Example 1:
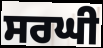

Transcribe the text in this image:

ਸਰਘੀ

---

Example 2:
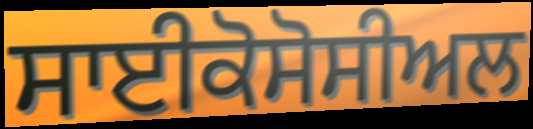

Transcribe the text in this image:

ਸਾਈਕੋਸੋਸੀਅਲ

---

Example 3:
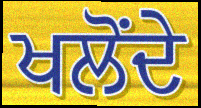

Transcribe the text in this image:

ਖਲੋਂਦੇ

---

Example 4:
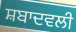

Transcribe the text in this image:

ਸ਼ਬਾਦਵਲੀ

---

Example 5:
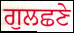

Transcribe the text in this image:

ਗੁਲਛਣੇ